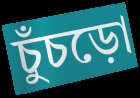
চুঁচড়ো